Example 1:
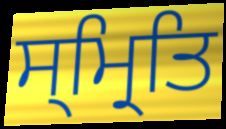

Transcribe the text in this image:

ਸ੍ਮ੍ਰਿਤਿ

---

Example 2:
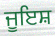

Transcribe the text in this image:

ਜੂਇਸ਼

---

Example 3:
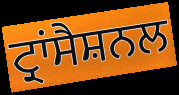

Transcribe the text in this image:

ਟ੍ਰਾਂਸੈਸ਼ਨਲ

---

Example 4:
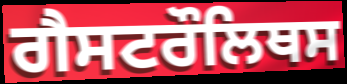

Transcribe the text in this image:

ਗੈਸਟਰੌਲਿਥਸ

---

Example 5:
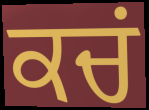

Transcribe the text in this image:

ਕਚਂ